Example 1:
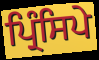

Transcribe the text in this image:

ਪ੍ਰਿੰਸਿਪੇ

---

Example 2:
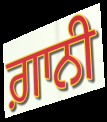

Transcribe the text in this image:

ਗ਼ਾਨੀ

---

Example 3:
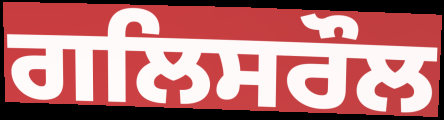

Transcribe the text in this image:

ਗਲਿਸਰੌਲ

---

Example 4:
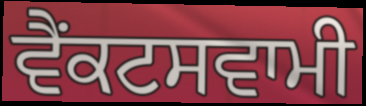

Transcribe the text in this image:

ਵੈਂਕਟਸਵਾਮੀ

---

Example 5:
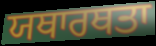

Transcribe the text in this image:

ਯਥਾਰਥਤਾ